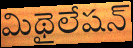
మిథైలేషన్